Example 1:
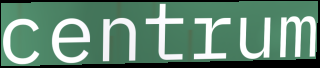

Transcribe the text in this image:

centrum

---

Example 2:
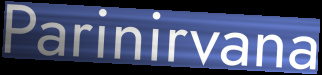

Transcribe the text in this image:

Parinirvana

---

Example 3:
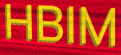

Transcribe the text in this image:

HBIM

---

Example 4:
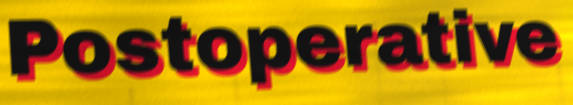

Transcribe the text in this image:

Postoperative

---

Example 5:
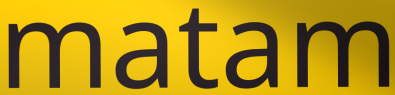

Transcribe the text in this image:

matam